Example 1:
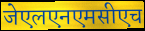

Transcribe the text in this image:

जेएलएनएमसीएच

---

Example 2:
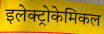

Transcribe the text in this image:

इलेक्ट्रोकेमिकल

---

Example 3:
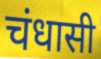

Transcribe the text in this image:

चंधासी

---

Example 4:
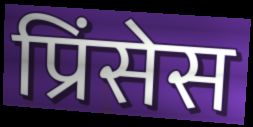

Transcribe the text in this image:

प्रिंसेस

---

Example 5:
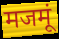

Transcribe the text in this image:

मजमूं